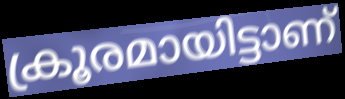
ക്രൂരമായിട്ടാണ്